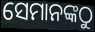
ସେମାନଙ୍କଠୁ